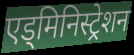
एड्मिनिस्ट्रेशन